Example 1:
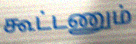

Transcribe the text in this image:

கூட்டணும்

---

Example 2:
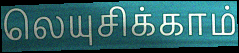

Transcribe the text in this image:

லெயுசிக்காம்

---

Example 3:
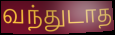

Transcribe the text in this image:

வந்துடாத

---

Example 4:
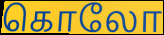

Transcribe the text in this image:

கொலோ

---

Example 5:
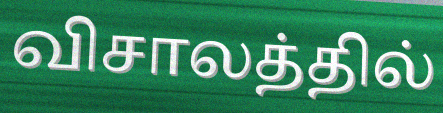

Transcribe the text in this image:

விசாலத்தில்